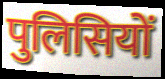
पुलिसियों